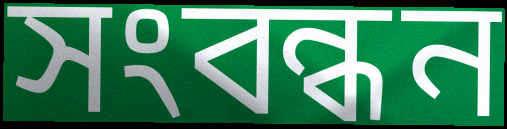
সংবন্ধন